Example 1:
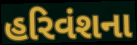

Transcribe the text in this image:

હરિવંશના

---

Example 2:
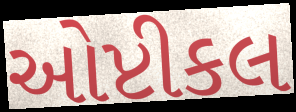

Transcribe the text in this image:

ઓપ્ટીકલ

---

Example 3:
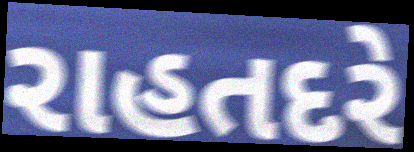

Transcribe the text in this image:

રાહતદરે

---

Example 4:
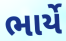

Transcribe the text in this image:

ભાર્યે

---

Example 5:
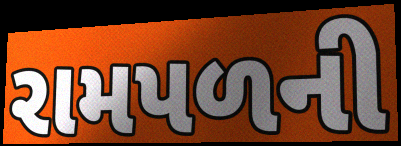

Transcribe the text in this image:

રામપળની